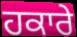
ਹਕਾਰੇ